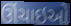
ઊંચાઇઓ